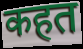
कहत